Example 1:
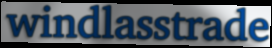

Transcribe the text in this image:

windlasstrade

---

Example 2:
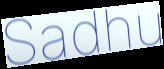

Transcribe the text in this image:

Sadhu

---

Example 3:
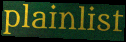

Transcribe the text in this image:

plainlist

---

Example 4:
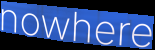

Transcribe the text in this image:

nowhere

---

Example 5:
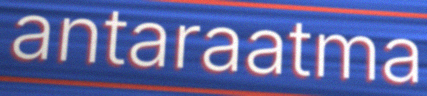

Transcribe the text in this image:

antaraatma